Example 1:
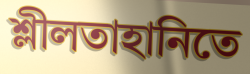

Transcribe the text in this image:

শ্লীলতাহানিতে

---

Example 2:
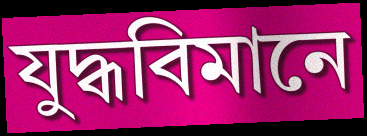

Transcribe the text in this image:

যুদ্ধবিমানে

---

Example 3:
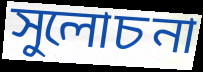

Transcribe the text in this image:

সুলোচনা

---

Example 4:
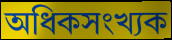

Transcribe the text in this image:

অধিকসংখ্যক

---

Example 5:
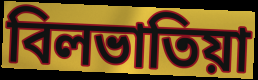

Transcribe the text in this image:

বিলভাতিয়া